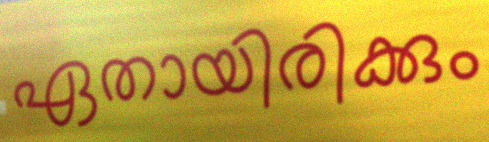
ഏതായിരിക്കും